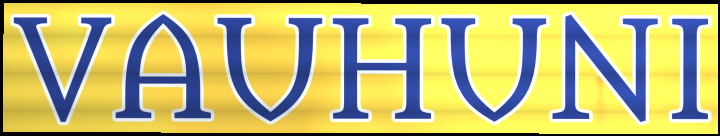
VAUHUNI